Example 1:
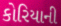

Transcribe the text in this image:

કોરિયાની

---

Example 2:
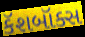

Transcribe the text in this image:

કૅશબૉક્સ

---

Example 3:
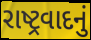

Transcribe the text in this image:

રાષ્ટ્રવાદનું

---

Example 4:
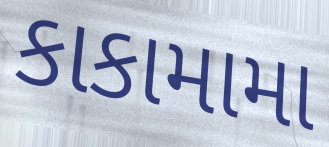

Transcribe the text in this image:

કાકામામા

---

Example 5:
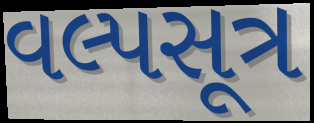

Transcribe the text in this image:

વલ્પસૂત્ર